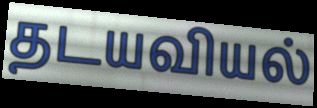
தடயவியல்